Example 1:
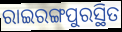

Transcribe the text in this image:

ରାଇରଙ୍ଗପୁରସ୍ଥିତ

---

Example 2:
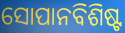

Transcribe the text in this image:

ସୋପାନବିଶିଷ୍ଟ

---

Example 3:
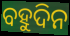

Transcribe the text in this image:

ବହୁଦିନ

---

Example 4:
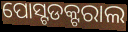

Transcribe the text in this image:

ପୋସ୍ଟଡକ୍ଟରାଲ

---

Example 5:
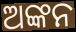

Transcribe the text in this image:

ଅଙ୍କନ